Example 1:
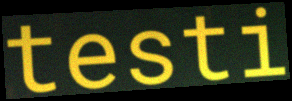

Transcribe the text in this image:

testi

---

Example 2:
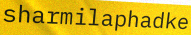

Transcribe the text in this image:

sharmilaphadke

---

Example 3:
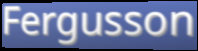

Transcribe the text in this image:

Fergusson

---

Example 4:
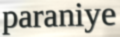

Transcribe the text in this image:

paraniye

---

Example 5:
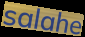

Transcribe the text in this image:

salahe